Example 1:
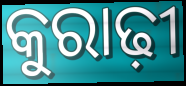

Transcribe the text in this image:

କୁରାଢ଼ୀ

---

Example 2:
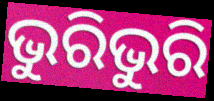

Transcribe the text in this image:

ଭୁରିଭୁରି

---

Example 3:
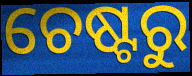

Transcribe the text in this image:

ଚେଷ୍ଟରୁ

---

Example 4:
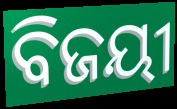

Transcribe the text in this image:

ବିଜୟୀ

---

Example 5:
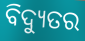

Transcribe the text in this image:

ବିଦ୍ୟୁତର